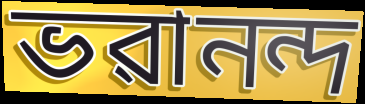
ভৱানন্দ